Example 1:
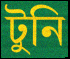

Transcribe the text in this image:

টুনি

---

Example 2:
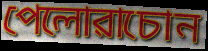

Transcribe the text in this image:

পেলোৱাচোন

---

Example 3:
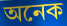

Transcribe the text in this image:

অনেক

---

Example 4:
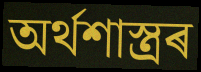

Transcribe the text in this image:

অৰ্থশাস্ত্ৰৰ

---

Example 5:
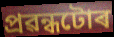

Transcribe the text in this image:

প্ৰৱন্ধটোৰ